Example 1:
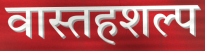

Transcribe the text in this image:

वास्तहशल्प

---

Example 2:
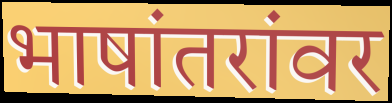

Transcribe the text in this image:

भाषांतरांवर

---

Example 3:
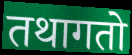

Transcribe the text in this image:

तथागतो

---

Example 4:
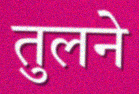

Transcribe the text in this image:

तुलने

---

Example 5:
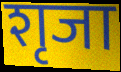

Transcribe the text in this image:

शृजा